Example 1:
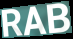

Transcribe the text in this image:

RAB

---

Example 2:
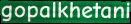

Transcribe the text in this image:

gopalkhetani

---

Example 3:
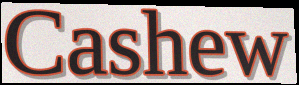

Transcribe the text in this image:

Cashew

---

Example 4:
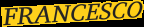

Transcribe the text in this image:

FRANCESCO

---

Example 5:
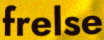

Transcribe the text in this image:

frelse